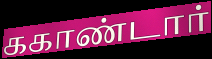
ககாண்டார்